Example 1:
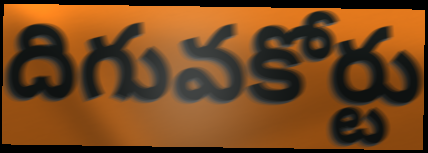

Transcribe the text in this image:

దిగువకోర్టు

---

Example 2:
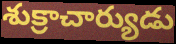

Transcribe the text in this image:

శుక్రాచార్యుడు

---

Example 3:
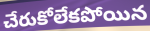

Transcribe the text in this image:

చేరుకోలేకపోయిన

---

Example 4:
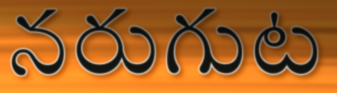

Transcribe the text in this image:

నరుగుట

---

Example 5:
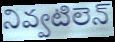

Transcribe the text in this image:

నివ్వటిలెన్